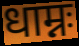
धाम्नः